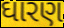
ઘારણ